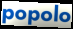
popolo